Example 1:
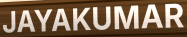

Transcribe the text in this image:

JAYAKUMAR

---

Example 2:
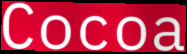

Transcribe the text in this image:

Cocoa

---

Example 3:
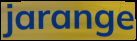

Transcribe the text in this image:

jarange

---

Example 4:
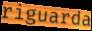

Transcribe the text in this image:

riguarda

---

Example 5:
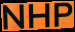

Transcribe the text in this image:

NHP